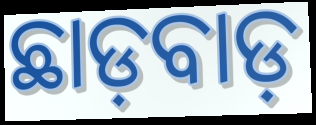
ଛାଡ଼ବାଡ଼